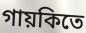
গায়কিতে